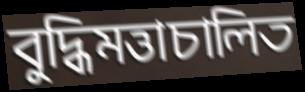
বুদ্ধিমত্তাচালিত